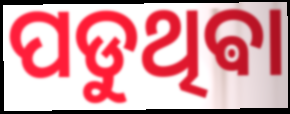
ପଡୁଥିଵା